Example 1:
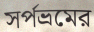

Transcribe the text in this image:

সর্পভ্রমের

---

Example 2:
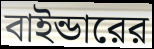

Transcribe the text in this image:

বাইন্ডারের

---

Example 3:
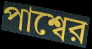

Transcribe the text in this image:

পাশ্বের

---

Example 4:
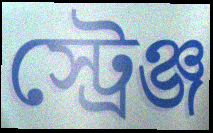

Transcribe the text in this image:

স্ট্রেঞ্জ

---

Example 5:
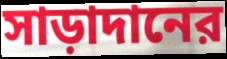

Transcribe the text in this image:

সাড়াদানের